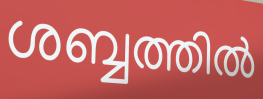
ശബ്ബത്തിൽ